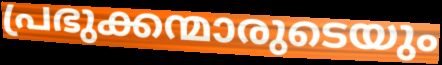
പ്രഭുക്കന്മാരുടെയും